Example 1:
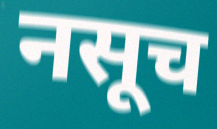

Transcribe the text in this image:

नसूच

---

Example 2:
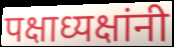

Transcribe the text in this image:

पक्षाध्यक्षांनी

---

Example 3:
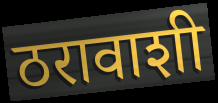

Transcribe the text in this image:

ठरावाशी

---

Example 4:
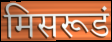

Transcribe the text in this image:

मिसरूडं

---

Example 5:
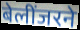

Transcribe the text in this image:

बेलींजरने